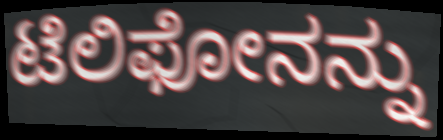
ಟೆಲಿಫೋನನ್ನು